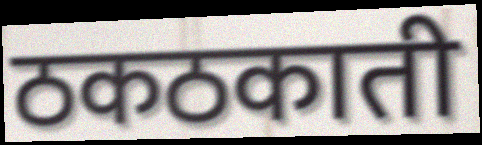
ठकठकाती